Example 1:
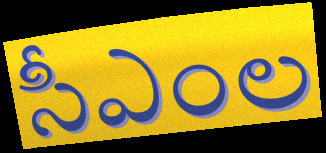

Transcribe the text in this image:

సీఎంల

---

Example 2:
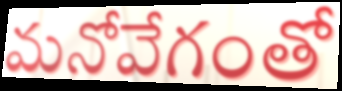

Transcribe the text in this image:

మనోవేగంతో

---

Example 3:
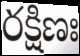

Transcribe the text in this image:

రక్షిణః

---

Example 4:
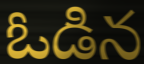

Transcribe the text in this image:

ఓడిన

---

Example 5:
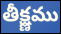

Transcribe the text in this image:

తీక్ష్ణము